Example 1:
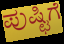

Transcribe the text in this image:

ಪುಷ್ಟಿಗೆ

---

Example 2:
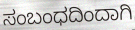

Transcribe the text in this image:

ಸಂಬಂಧದಿಂದಾಗಿ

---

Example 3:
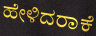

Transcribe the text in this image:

ಹೇಳಿದರಾಕೆ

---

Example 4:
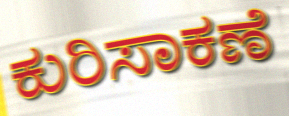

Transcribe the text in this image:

ಕುರಿಸಾಕಣೆ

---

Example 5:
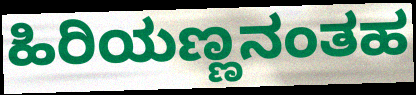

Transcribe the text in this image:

ಹಿರಿಯಣ್ಣನಂತಹ